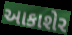
આકાશેર